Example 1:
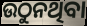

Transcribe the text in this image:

ଉଠୁନଥିବା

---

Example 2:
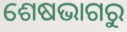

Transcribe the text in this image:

ଶେଷଭାଗରୁ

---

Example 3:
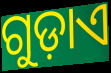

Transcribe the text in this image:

ଗୁଡ଼ାଏ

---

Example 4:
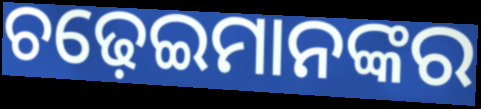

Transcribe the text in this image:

ଚଢ଼େଇମାନଙ୍କର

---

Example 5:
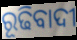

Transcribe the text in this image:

ରୂଢିବାଦୀ